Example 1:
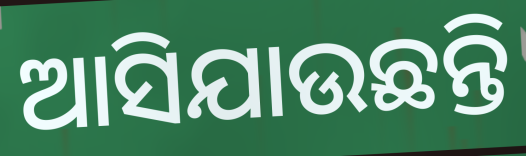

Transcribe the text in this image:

ଆସିଯାଉଛନ୍ତି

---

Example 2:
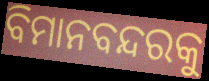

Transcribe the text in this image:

ବିମାନବନ୍ଦରକୁ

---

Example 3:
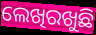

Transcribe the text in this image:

ଲେଖିରଖୁଛି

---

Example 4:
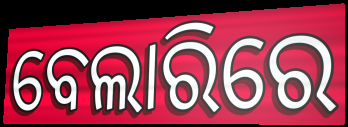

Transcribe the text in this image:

ବେଲାରିରେ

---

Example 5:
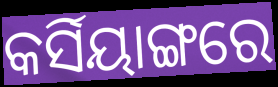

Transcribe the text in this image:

କର୍ସିୟାଙ୍ଗରେ